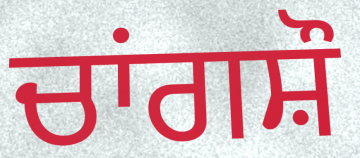
ਚਾਂਗਸ਼ੌ